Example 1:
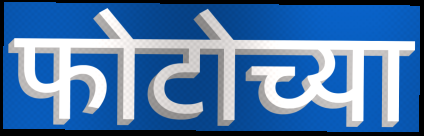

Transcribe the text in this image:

फोटोच्या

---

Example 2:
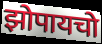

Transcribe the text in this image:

झोपायचो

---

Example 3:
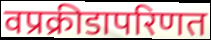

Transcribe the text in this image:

वप्रक्रीडापरिणत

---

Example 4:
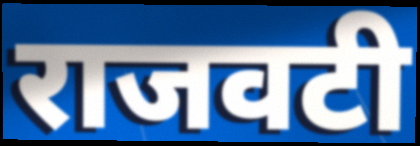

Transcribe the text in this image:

राजवटी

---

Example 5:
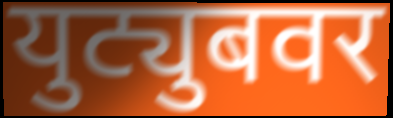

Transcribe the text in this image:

युट्युबवर